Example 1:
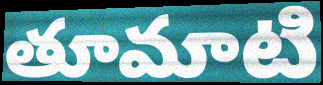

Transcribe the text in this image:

తూమాటి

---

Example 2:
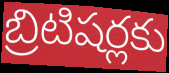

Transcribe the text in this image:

బ్రిటిషర్లకు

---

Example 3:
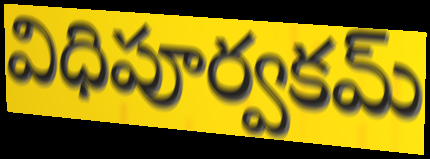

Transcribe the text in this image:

విధిపూర్వకమ్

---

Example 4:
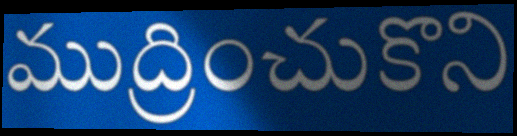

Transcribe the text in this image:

ముద్రించుకొని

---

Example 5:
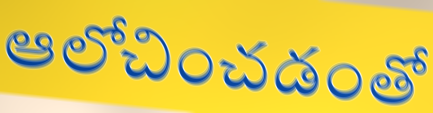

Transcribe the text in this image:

ఆలోచించడంతో